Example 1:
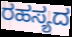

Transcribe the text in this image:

ರಹಸ್ಯದ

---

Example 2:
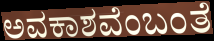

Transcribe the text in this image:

ಅವಕಾಶವೆಂಬಂತೆ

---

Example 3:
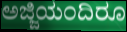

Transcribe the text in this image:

ಅಜ್ಜಿಯಂದಿರೂ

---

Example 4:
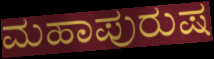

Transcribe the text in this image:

ಮಹಾಪುರುಷ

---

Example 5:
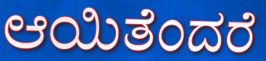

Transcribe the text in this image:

ಆಯಿತೆಂದರೆ